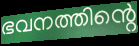
ഭവനത്തിന്റെ